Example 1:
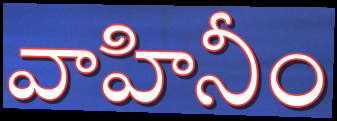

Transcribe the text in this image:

వాహినీం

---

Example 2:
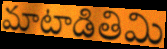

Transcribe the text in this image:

మాటాడితిమి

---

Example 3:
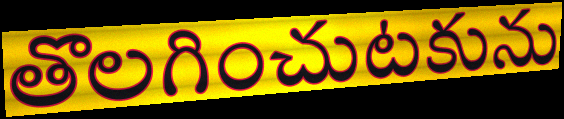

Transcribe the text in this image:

తొలగించుటకును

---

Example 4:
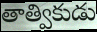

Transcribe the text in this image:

తాత్వికుడు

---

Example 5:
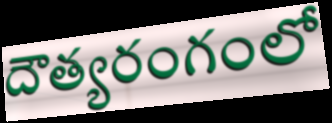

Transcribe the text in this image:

దౌత్యరంగంలో